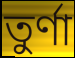
তুর্ণা